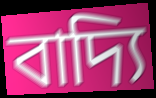
বাদ্যি